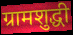
ग्रामशुद्धी